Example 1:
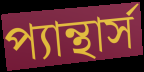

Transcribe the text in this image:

প্যান্থার্স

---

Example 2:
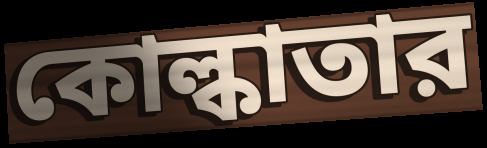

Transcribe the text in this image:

কোল্কাতার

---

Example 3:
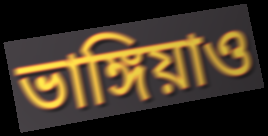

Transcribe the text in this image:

ভাঙ্গিয়াও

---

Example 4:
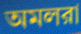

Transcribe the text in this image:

অমলরা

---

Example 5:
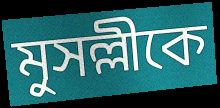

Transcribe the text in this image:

মুসল্লীকে